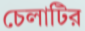
চেলাটির